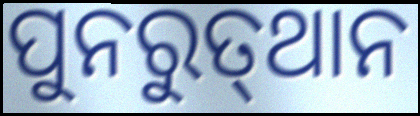
ପୁନରୁତ୍‌ଥାନ